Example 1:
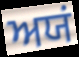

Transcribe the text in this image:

ਅਯਂ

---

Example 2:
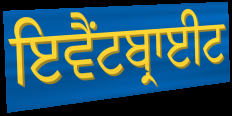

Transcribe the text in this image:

ਇਵੈਂਟਬ੍ਰਾਈਟ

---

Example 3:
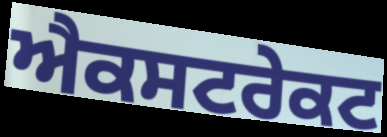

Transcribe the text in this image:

ਐਕਸਟਰੇਕਟ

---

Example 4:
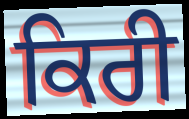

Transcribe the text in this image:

ਕਿਰੀ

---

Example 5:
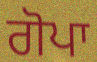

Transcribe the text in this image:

ਗੋਪਾ